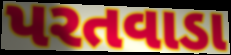
પરતવાડા